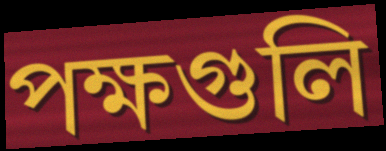
পক্ষগুলি